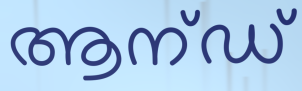
ആന്ഡ്